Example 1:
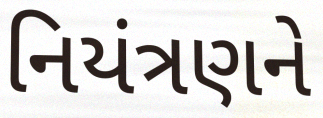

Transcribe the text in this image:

નિયંત્રણને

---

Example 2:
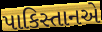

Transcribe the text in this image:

પાકિસ્તાનએ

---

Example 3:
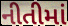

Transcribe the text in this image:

નીતીમાં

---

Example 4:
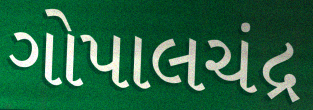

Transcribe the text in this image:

ગોપાલચંદ્ર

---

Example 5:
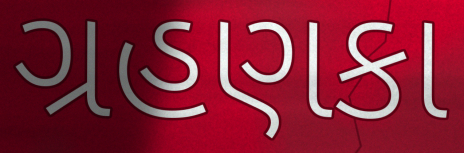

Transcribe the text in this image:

ગ્રહણકા